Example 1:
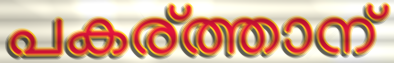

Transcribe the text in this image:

പകര്ത്താന്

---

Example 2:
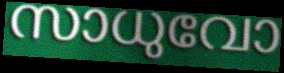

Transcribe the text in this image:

സാധുവോ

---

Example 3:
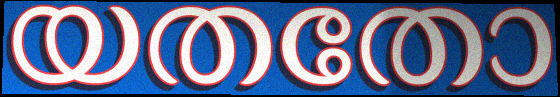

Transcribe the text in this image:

യതതോ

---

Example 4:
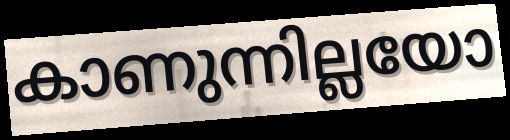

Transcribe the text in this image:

കാണുന്നില്ലയോ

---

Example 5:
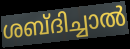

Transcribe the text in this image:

ശബ്ദിച്ചാൽ